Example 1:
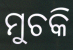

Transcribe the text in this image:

ମୁଚକି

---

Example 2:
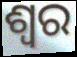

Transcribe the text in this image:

ଶ୍ୱର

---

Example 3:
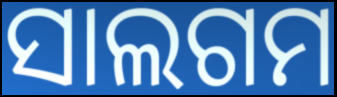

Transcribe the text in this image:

ସାଲଗମ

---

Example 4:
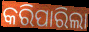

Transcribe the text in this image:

କରିପାରିଲା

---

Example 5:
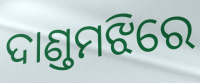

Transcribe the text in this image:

ଦାଣ୍ଡମଝିରେ